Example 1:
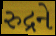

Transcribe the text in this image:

રુદ્રને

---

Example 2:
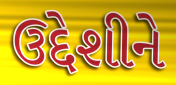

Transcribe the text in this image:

ઉદ્દેશીને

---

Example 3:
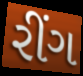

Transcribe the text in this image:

રીંગ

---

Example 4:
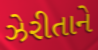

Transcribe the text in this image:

ઝેરીતાને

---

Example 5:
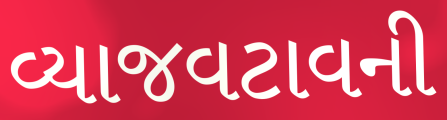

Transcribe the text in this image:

વ્યાજવટાવની